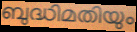
ബുദ്ധിമതിയും